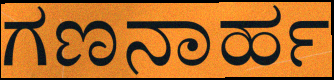
ಗಣನಾರ್ಹ